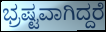
ಭ್ರಷ್ಟವಾಗಿದ್ದರೆ